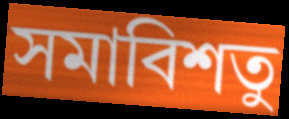
সমাবিশতু